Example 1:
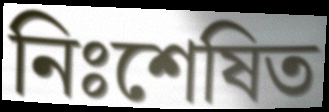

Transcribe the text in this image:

নিঃশেষিত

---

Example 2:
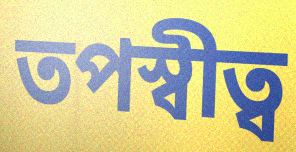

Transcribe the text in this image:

তপস্বীত্ব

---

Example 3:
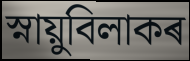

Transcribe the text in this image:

স্নায়ুবিলাকৰ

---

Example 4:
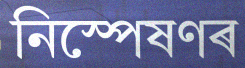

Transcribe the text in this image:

নিস্পেষণৰ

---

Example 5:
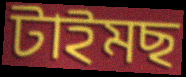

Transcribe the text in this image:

টাইমছ